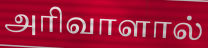
அரிவாளால்